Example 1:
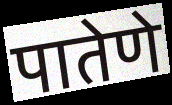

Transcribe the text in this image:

पातेणे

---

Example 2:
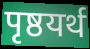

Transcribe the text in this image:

पृष्ठयर्थ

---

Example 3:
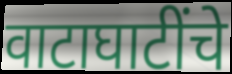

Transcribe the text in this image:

वाटाघाटींचे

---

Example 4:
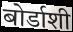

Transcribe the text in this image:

बोर्डाशी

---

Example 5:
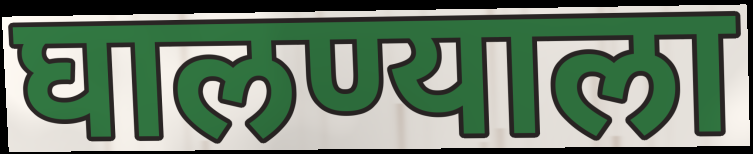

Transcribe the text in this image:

घालण्याला